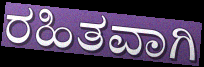
ರಹಿತವಾಗಿ